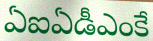
ఏఐఏడీఎంకే